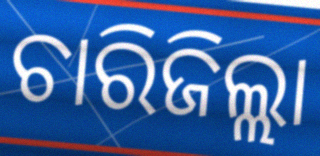
ଚାରିଜିଲ୍ଲା